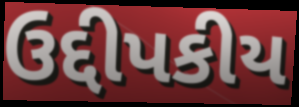
ઉદ્દીપકીય